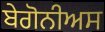
ਬੇਗੋਨੀਅਸ